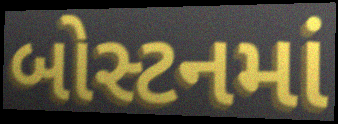
બોસ્ટનમાં